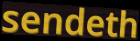
sendeth